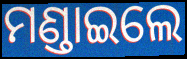
ମଣ୍ଡାଇଲେ